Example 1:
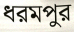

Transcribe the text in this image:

ধরমপুর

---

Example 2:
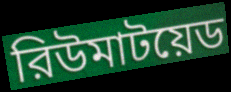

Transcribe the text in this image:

রিউমাটয়েড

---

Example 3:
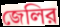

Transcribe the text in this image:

জেলির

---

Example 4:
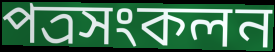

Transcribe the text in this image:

পত্রসংকলন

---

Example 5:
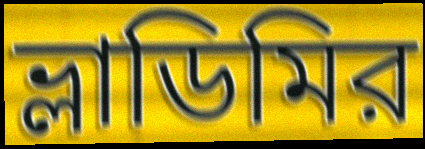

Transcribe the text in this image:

ভ্লাডিমির